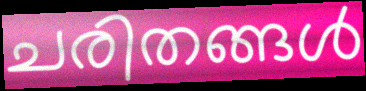
ചരിതങ്ങൾ